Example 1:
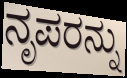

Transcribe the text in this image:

ನೃಪರನ್ನು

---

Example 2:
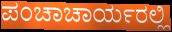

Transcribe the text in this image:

ಪಂಚಾಚಾರ್ಯರಲ್ಲಿ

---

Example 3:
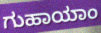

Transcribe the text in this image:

ಗುಹಾಯಾಂ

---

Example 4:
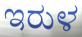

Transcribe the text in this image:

ಇರುಳ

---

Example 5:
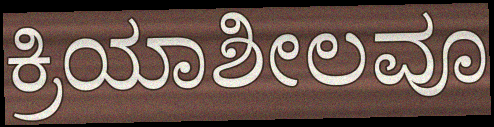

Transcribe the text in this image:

ಕ್ರಿಯಾಶೀಲವೂ